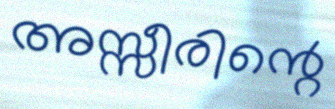
അസ്സീരിന്റെ